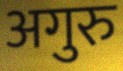
अगुरु